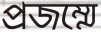
প্রজম্মে